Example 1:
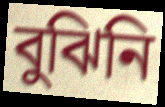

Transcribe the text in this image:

বুঝিনি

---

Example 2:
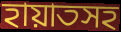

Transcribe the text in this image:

হায়াতসহ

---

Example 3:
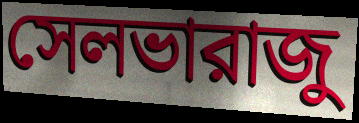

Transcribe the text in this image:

সেলভারাজু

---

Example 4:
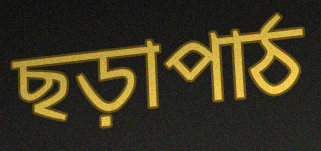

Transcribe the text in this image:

ছড়াপাঠ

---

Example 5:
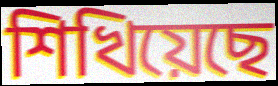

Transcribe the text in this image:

শিখিয়েছে